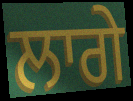
ਲਾਗੇ